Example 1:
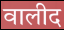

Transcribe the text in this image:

वालीद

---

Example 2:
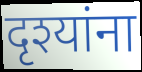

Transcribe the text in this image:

दृश्यांना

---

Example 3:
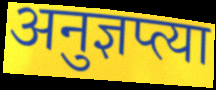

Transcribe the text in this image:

अनुज्ञप्त्या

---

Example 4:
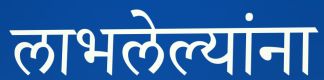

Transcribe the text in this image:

लाभलेल्यांना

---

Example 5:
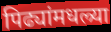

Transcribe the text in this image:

पिढ्यांमधल्या